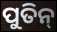
ପୁତିନ୍